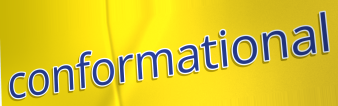
conformational